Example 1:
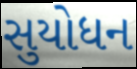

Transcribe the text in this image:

સુયોધન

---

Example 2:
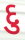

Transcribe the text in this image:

દુ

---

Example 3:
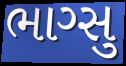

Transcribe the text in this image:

ભાગ્સુ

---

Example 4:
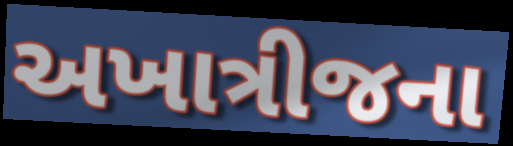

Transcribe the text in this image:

અખાત્રીજના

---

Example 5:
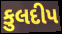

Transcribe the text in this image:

કુલદીપ